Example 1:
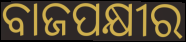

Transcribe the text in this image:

ବାଜପକ୍ଷୀର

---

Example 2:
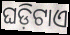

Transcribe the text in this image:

ଘଡ଼ିଟାଏ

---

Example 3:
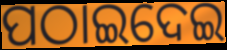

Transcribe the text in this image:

ପଠାଇଦେଇ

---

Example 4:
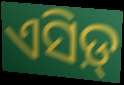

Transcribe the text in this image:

ଏସିଡ଼୍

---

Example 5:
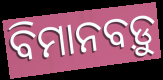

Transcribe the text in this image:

ବିମାନବଡ଼ୁ